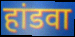
हांडवा